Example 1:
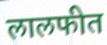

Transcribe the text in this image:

लालफीत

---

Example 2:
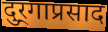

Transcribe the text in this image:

दुर्गाप्रसाद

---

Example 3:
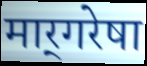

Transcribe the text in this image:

मार्गरेषा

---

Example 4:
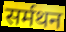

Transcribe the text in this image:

सर्मथन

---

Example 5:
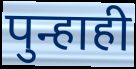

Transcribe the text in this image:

पुन्हाही